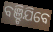
ବଞ୍ଚିଯିବେ